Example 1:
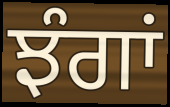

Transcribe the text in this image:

ਝੰਗਾਂ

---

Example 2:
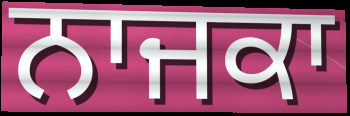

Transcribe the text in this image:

ਨਾਜਕਾ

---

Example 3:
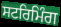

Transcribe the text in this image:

ਸਟਰਿਮਿੰਗ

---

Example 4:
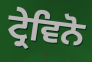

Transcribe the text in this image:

ਟ੍ਰੇਵਿਨੋ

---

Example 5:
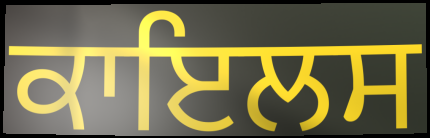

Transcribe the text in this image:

ਕਾਇਲਸ